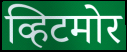
व्हिटमोर